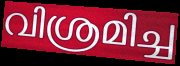
വിശ്രമിച്ച